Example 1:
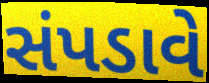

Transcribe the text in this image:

સંપડાવે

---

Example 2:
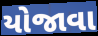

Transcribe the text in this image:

યોજાવા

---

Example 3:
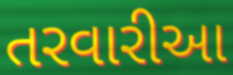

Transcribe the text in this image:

તરવારીઆ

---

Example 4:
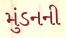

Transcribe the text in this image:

મુંડનની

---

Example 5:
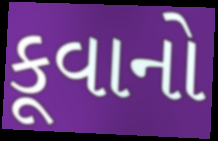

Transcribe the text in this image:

કૂવાનો